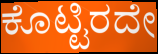
ಕೊಟ್ಟಿರದೇ